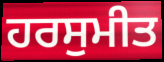
ਹਰਸੁਮੀਤ